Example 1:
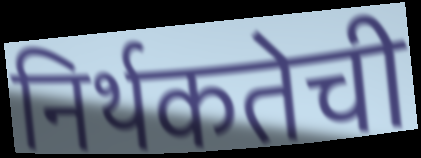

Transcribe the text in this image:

निर्थकतेची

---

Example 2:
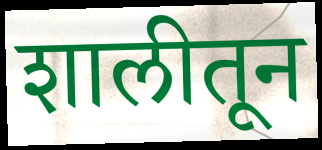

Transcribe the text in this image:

शालीतून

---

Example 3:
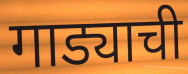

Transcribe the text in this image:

गाड्याची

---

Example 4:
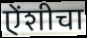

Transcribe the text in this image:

ऐंशीचा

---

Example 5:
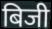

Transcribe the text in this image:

बिजी